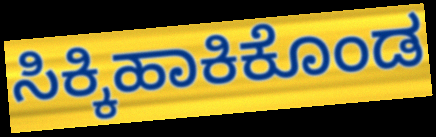
ಸಿಕ್ಕಿಹಾಕಿಕೊಂಡ